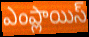
ఎంప్లాయిస్